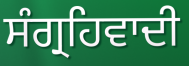
ਸੰਗ੍ਰਹਿਵਾਦੀ